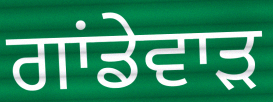
ਗਾਂਡੇਵਾੜ